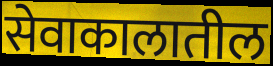
सेवाकालातील